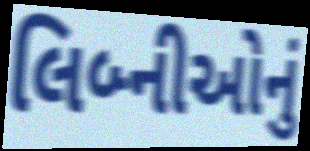
લિબ્નીઓનું